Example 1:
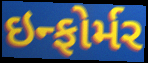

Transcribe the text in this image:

ઇન્ફોર્મર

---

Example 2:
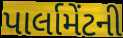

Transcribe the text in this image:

પાર્લામેંટની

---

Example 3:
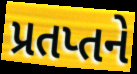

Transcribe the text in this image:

પ્રતપ્તને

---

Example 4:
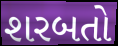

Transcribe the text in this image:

શરબતો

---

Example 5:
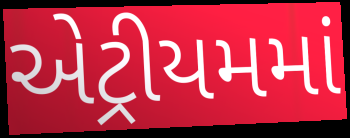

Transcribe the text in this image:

એટ્રીયમમાં